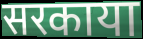
सरकाया